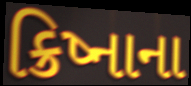
ક્રિષ્નાના